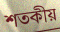
শতকীয়